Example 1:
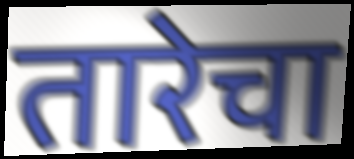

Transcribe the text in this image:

तारेचा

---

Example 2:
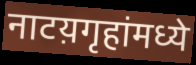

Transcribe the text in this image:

नाटय़गृहांमध्ये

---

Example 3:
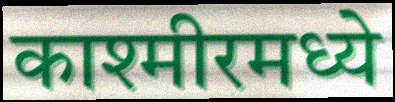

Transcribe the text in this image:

काश्मीरमध्ये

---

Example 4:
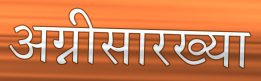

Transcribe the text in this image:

अग्नीसारख्या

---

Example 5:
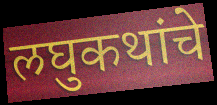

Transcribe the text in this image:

लघुकथांचे